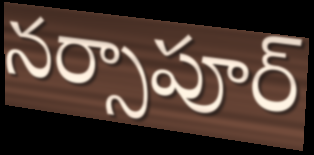
నర్సాపూర్